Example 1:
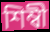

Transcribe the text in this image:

শিম্বী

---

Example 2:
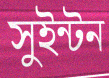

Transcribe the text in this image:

সুইন্টন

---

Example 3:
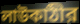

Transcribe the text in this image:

লাউকাঠীর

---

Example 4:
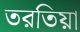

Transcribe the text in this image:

তরতিয়া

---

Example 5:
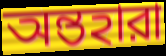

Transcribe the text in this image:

অন্তহারা